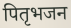
पितृभजन